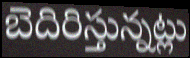
బెదిరిస్తున్నట్లు